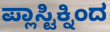
ಪ್ಲಾಸ್ಟಿಕ್ನಿಂದ